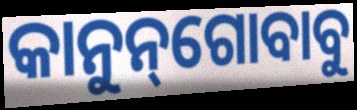
କାନୁନ୍‌ଗୋବାବୁ